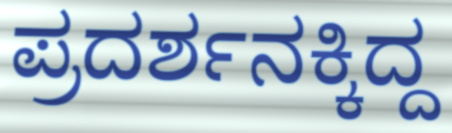
ಪ್ರದರ್ಶನಕ್ಕಿದ್ದ